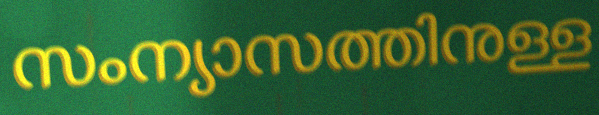
സംന്യാസത്തിനുള്ള